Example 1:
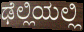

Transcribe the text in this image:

ಢೆಲ್ಲಿಯಲ್ಲಿ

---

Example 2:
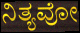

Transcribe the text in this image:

ನಿತ್ಯವೋ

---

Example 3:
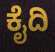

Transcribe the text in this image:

ಕೈದಿ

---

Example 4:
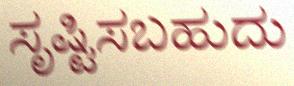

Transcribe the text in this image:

ಸೃಷ್ಟಿಸಬಹುದು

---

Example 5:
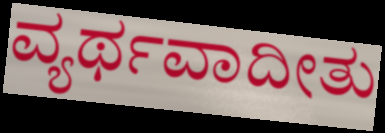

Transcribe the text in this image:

ವ್ಯರ್ಥವಾದೀತು